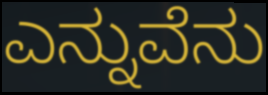
ಎನ್ನುವೆನು